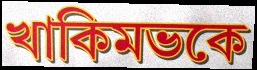
খাকিমভকে